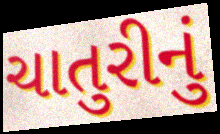
ચાતુરીનું